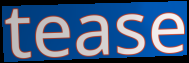
tease